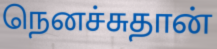
நெனச்சுதான்